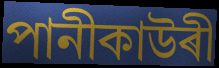
পানীকাউৰী